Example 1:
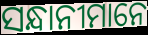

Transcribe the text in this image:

ସନ୍ଧାନୀମାନେ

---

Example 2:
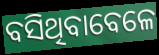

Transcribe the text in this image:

ବସିଥିବାବେଳେ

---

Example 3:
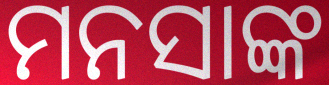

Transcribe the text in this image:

ମନସାଙ୍କ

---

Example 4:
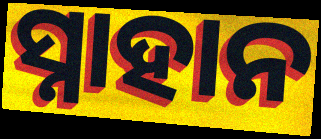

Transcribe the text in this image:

ସ୍ନାହାନ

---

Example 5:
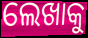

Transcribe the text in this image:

ଲେଖାକୁ